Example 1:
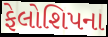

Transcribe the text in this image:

ફેલોશિપના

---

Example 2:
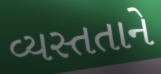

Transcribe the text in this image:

વ્યસ્તતાને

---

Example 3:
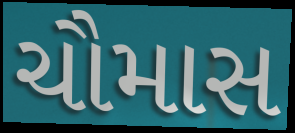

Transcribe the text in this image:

ચૌમાસ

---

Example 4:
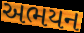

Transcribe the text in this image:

અભયન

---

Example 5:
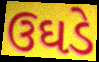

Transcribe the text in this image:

ઉઘડે